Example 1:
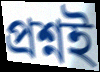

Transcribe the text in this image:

প্ৰশ্নই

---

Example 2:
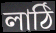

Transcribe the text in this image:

লাঠি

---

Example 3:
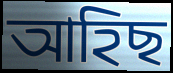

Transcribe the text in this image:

আহিছ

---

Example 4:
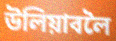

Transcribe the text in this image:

উলিয়াবলৈ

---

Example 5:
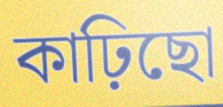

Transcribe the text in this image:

কাঢ়িছো